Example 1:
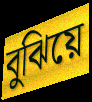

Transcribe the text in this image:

বুঝিয়ে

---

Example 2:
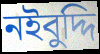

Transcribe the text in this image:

নইবুদ্দি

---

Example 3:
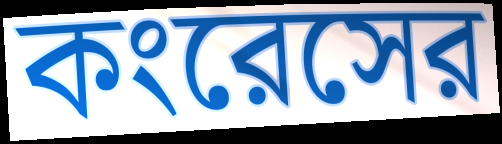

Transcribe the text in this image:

কংরেসের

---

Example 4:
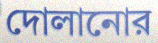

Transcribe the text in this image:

দোলানোর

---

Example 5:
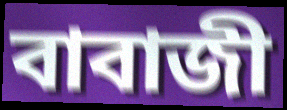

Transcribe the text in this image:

বাবাজী